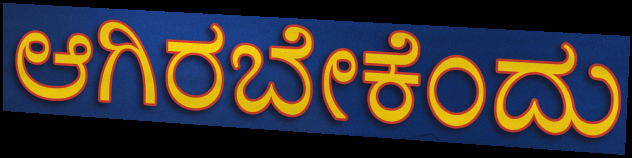
ಆಗಿರಬೇಕೆಂದು